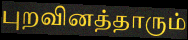
புறவினத்தாரும்